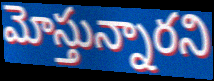
మోస్తున్నారని